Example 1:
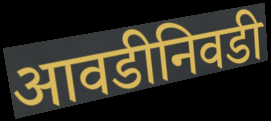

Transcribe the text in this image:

आवडीनिवडी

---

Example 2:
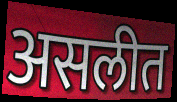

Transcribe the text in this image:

असलीत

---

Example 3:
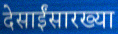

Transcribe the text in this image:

देसाईंसारख्या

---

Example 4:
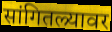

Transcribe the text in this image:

सांगितल्यावर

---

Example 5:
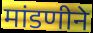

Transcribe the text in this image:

मांडणीने